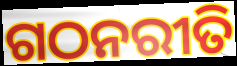
ଗଠନରୀତି